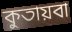
কুতায়বা